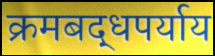
क्रमबद्धपर्याय